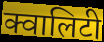
क्वालिटी